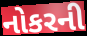
નોકરની